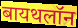
बायथलॉन